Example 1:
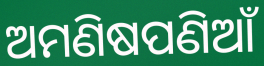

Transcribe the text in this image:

ଅମଣିଷପଣିଆଁ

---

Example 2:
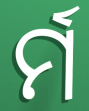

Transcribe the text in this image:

ର୍ମ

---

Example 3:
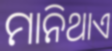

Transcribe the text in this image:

ମାନିଥାଏ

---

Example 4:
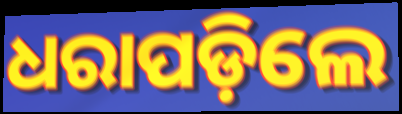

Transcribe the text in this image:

ଧରାପଡ଼ିଲେ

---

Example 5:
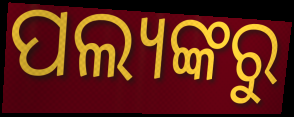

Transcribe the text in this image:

ପଲ୍ୟଙ୍କରୁ